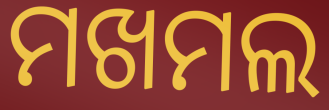
ମଖମଲ